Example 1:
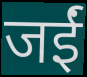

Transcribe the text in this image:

जईं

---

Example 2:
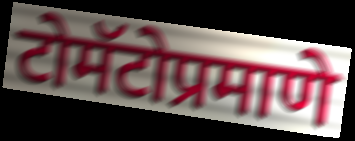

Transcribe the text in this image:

टोमॅटोप्रमाणे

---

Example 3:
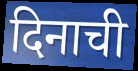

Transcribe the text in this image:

दिनाची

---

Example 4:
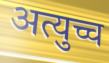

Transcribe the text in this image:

अत्युच्च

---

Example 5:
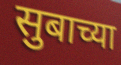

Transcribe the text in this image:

सुबाच्या